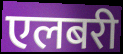
एलबरी